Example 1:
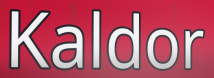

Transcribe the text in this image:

Kaldor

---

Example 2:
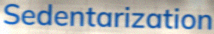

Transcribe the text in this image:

Sedentarization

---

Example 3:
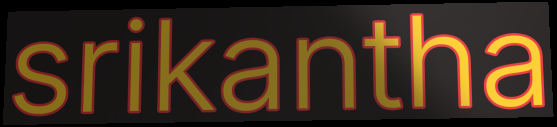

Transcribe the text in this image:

srikantha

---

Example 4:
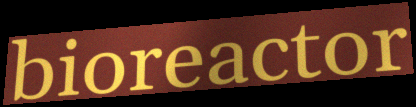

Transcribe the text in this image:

bioreactor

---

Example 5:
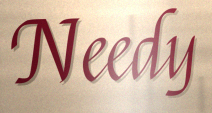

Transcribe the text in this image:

Needy